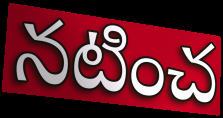
నటించ